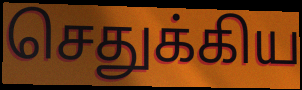
செதுக்கிய